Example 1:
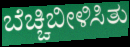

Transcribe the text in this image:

ಬೆಚ್ಚಿಬೀಳಿಸಿತು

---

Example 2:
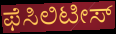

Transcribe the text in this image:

ಫೆಸಿಲಿಟೀಸ್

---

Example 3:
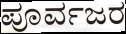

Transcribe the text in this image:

ಪೂರ್ವಜರ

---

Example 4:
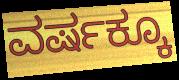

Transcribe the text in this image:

ವರ್ಷಕ್ಕೂ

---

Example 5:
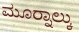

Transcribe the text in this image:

ಮೂರ‍್ನಾಲ್ಕು